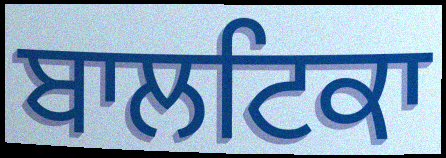
ਬਾਲਟਿਕਾ